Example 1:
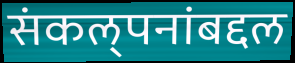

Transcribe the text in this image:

संकल्पनांबद्दल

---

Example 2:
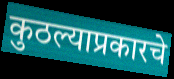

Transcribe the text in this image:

कुठल्याप्रकारचे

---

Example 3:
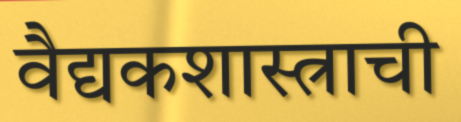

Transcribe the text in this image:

वैद्यकशास्त्राची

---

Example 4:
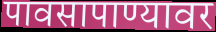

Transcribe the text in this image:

पावसापाण्यावर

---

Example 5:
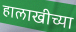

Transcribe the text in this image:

हालाखीच्या